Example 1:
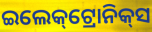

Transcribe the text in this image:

ଇଲେକ୍‌ଟ୍ରୋନିକ୍‌ସ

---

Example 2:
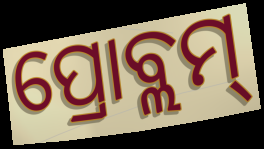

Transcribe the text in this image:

ପ୍ରୋବ୍ଲମ୍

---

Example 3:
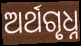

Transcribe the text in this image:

ଅର୍ଥଗୃଧ୍ନ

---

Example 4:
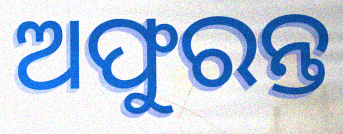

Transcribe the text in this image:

ଅଫୁରନ୍ତ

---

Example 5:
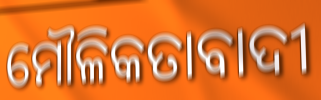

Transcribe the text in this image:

ମୌଳିକତାବାଦୀ